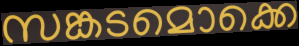
സങ്കടമൊക്കെ